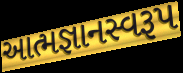
આત્મજ્ઞાનસ્વરૂપ